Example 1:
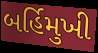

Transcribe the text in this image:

બર્હિમુખી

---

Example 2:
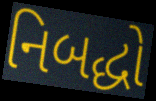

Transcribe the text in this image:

નિબદ્ધો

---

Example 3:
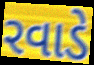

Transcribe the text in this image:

રવાડે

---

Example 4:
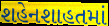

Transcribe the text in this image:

શહેનશાહતમાં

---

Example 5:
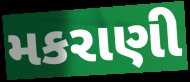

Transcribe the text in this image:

મકરાણી